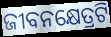
ଜୀବନକ୍ଷେତ୍ରଟି